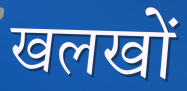
खलखों